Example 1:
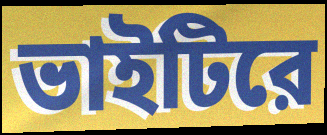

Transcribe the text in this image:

ভাইটিরে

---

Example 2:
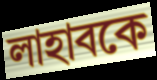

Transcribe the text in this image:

লাহাবকে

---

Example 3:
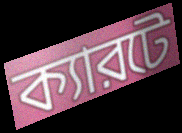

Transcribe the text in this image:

ক্যারটে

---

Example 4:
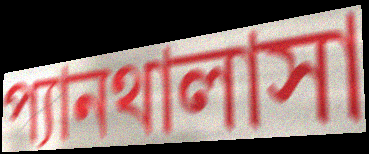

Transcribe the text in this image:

প্যানথালাসা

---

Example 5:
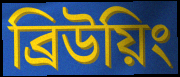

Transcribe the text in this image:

ব্রিউয়িং